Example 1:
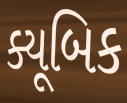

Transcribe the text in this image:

ક્યૂબિક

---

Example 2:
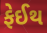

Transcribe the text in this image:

ફેઈથ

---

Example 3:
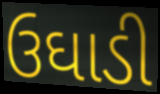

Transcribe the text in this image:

ઉઘાડી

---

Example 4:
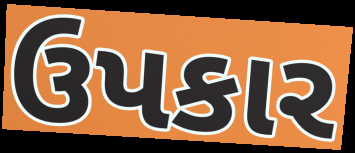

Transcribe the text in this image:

ઉપકાર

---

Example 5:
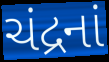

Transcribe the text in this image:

ચંદ્રનાં